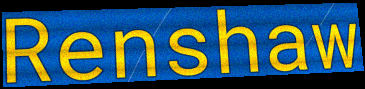
Renshaw